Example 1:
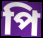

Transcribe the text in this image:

পি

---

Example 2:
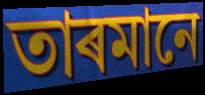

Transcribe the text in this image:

তাৰমানে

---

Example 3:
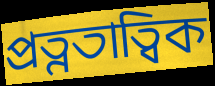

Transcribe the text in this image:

প্ৰত্নতাত্বিক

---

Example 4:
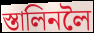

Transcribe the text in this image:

স্তালিনলৈ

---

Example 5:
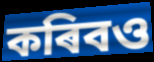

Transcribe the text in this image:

কৰিবও